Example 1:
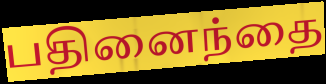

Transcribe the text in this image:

பதினைந்தை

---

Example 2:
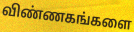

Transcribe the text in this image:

விண்ணகங்களை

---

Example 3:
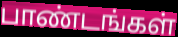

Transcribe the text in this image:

பாண்டங்கள்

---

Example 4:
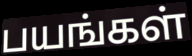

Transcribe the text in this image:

பயங்கள்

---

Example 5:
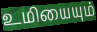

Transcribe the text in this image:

உமியையும்